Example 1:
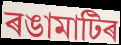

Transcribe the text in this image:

ৰঙামাটিৰ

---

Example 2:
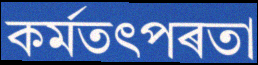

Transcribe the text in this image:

কৰ্মতৎপৰতা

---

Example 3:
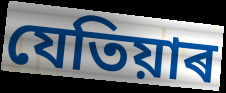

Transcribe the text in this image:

যেতিয়াৰ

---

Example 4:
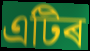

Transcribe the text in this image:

এটিৰ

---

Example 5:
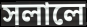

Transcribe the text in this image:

সলালে